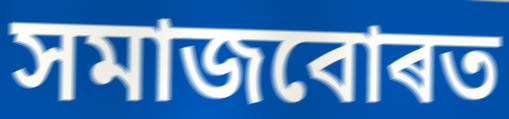
সমাজবোৰত